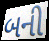
બની